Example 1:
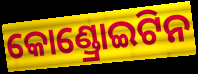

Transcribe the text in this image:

କୋଣ୍ଡ୍ରୋଇଟିନ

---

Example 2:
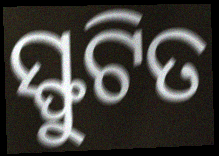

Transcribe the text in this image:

ସ୍ଫୁଟିତ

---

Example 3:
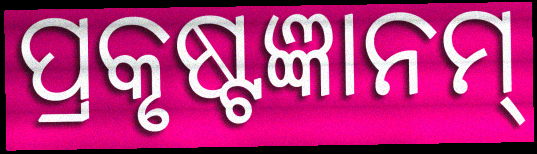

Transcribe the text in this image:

ପ୍ରକୃଷ୍ଟଜ୍ଞାନମ୍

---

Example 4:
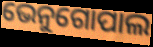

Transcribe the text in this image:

ଭେନୁଗୋପାଲ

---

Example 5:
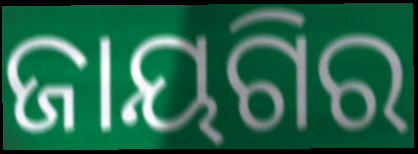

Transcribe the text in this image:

ଜାୟଗିର